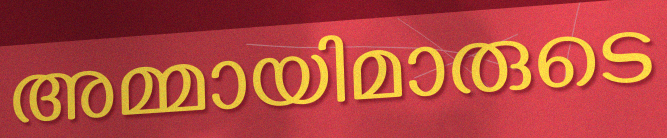
അമ്മായിമാരുടെ